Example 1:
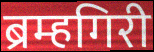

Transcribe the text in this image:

ब्रम्हगिरी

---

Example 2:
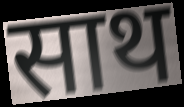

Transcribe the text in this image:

साथ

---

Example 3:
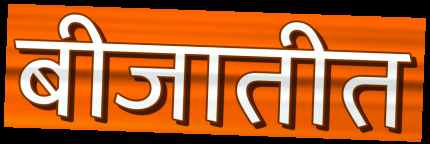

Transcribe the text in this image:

बीजातीत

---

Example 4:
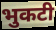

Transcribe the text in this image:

भुकटी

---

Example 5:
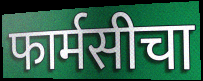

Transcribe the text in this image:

फार्मसीचा